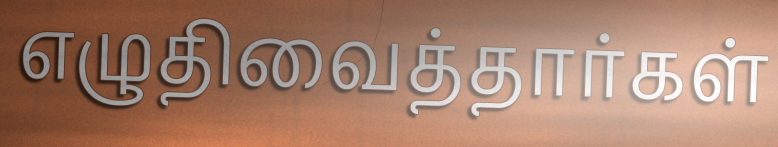
எழுதிவைத்தார்கள்